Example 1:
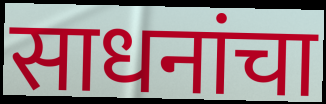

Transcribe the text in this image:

साधनांचा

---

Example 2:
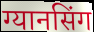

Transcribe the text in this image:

ग्यानसिंग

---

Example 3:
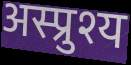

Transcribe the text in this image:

अस्प्रुश्य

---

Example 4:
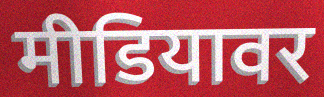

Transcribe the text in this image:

मीडियावर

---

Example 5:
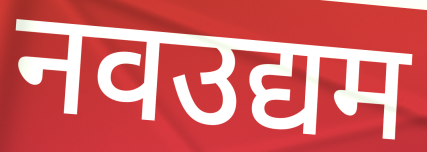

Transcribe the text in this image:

नवउद्यम